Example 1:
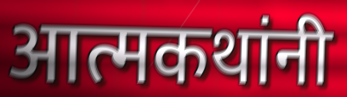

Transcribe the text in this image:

आत्मकथांनी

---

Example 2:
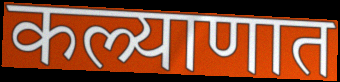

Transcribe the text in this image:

कल्याणात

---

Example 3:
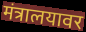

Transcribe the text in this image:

मंत्रालयावर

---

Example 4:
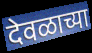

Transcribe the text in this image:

देवळाच्या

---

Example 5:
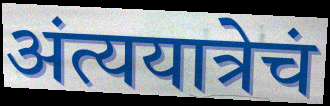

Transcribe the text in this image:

अंत्ययात्रेचं